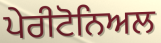
ਪੇਰੀਟੋਨਿਅਲ